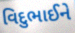
વિદુભાઈને